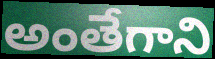
అంతేగాని